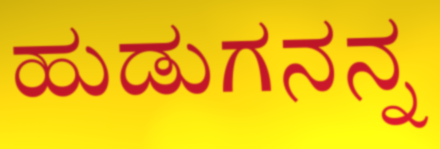
ಹುಡುಗನನ್ನ